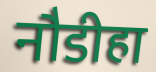
नौडीहा